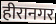
हीरानगर